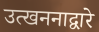
उत्खननाद्वारे